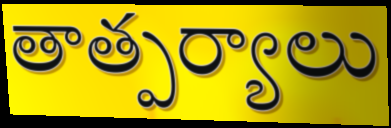
తాత్పర్యాలు